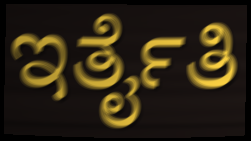
ಇರ್ತೈತಿ